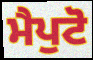
ਮੈਪੁਟੋ